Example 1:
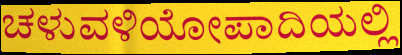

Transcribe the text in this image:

ಚಳುವಳಿಯೋಪಾದಿಯಲ್ಲಿ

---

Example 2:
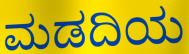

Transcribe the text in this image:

ಮಡದಿಯ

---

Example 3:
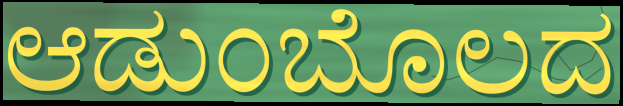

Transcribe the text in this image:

ಆಡುಂಬೊಲದ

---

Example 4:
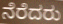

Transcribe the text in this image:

ನೆರೆದರು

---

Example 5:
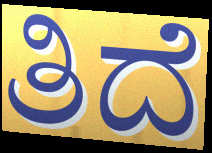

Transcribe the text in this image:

ತಿದೆ